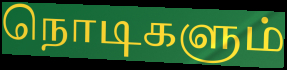
நொடிகளும்